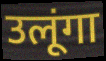
उलूंगा